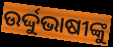
ଉର୍ଦ୍ଦୁଭାଷୀଙ୍କୁ